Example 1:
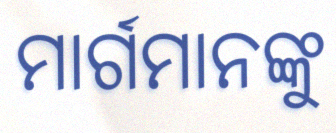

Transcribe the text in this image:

ମାର୍ଗମାନଙ୍କୁ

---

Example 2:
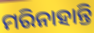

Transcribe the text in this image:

ମରିନାହାନ୍ତି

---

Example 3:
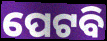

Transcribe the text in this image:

ପେଟବି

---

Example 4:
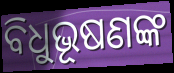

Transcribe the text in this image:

ବିଧୁଭୂଷଣଙ୍କ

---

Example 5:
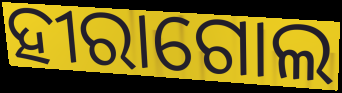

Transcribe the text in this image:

ହୀରାଗୋଲ